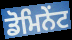
ਡੋਮਿਨੇਂਟ